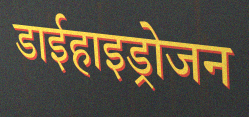
डाईहाइड्रोजन